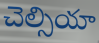
చెల్సియా